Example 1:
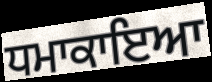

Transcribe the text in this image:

ਧਮਾਕਾਇਆ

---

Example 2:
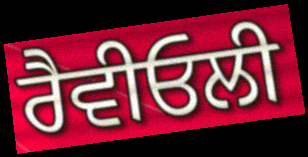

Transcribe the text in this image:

ਰੈਵੀਓਲੀ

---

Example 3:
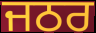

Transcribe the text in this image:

ਜਠਰ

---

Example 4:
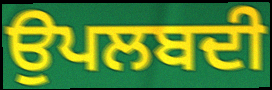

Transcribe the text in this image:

ਉਪਲਬਦੀ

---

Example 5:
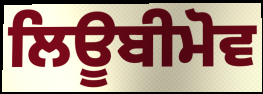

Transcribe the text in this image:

ਲਿਊਬੀਮੋਵ